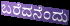
ಬರೆದನೆಂದು